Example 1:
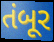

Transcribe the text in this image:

તંબૂર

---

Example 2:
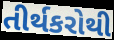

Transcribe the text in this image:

તીર્થકરોથી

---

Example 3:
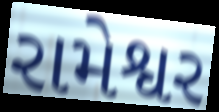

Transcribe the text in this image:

રામેશ્વર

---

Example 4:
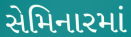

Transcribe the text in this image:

સેમિનારમાં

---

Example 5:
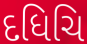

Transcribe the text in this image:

દધિચિ